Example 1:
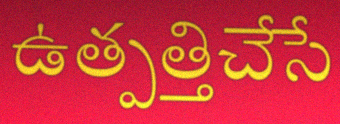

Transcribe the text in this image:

ఉత్పత్తిచేసే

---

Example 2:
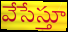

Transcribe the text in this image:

వేసేస్తూ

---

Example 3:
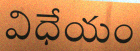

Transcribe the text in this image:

విధేయం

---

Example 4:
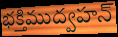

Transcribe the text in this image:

భక్తిముద్వహన్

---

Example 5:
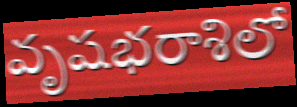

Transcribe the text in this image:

వృషభరాశిలో